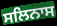
ਸਲਿਨਾਸ